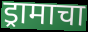
ड्रामाचा